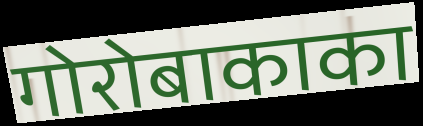
गोरोबाकाका